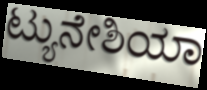
ಟ್ಯುನೇಶಿಯಾ